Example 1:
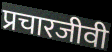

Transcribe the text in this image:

प्रचारजीवी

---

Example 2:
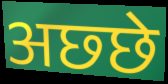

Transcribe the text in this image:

अछ्छे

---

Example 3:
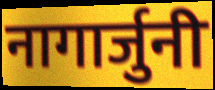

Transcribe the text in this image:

नागार्जुनी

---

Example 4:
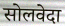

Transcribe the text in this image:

सोलवेदा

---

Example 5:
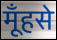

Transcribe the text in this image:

मूँहसे